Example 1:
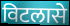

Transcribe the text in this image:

विटलासे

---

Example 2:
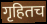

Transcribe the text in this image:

गृहितच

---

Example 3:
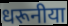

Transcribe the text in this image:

धरूनीया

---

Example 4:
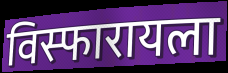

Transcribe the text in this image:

विस्फारायला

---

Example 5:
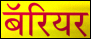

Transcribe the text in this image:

बॅरियर